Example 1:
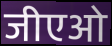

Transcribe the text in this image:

जीएओ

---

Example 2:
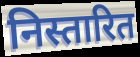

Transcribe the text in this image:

निस्तारित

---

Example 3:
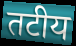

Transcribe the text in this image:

तटीय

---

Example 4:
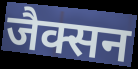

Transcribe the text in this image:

जैक्सन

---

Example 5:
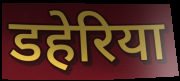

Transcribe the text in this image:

डहेरिया